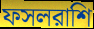
ফসলরাশি